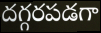
దగ్గరపడగా